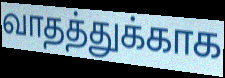
வாதத்துக்காக